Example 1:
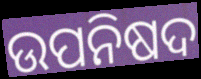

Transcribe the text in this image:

ଉପନିଷଦ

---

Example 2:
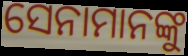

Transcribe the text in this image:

ସେନାମାନଙ୍କୁ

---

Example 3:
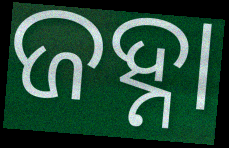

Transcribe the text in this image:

ଜହ୍ନା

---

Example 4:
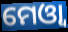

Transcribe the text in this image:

ମେଓ୍ୱା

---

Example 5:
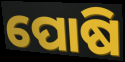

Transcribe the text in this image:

ପୋଷି